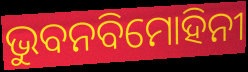
ଭୁବନବିମୋହିନୀ